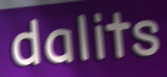
dalits